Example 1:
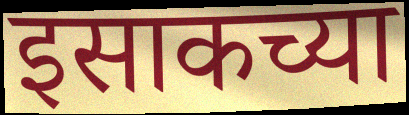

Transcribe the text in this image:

इसाकच्या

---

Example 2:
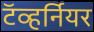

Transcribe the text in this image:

टॅव्हर्नियर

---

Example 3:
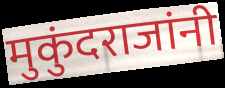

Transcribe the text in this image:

मुकुंदराजांनी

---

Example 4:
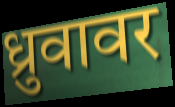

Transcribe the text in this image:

ध्रुवावर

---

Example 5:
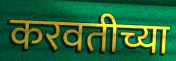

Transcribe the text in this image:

करवतीच्या